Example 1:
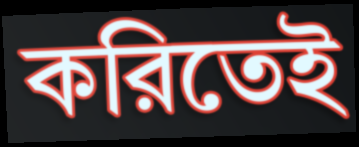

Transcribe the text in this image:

করিতেই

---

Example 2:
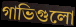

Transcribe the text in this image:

গাভিগুলো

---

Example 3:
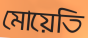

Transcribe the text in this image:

মোয়েতি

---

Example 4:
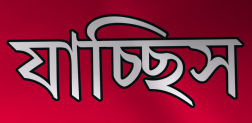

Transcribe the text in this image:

যাচ্ছিস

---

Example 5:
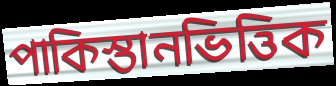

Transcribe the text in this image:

পাকিস্তানভিত্তিক